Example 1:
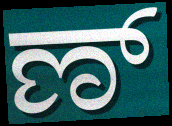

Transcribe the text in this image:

ಣ್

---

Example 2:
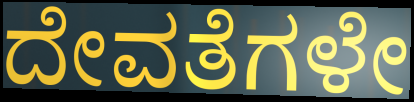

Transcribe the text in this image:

ದೇವತೆಗಳೇ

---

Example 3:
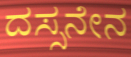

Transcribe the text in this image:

ದಸ್ಸನೇನ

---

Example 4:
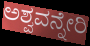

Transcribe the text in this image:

ಅಶ್ವವನ್ನೇರಿ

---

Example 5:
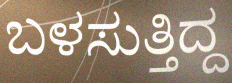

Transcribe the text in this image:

ಬಳಸುತ್ತಿದ್ದ